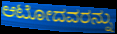
ಆಟೋದವರನ್ನು